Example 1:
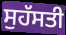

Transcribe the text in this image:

ਸੁਹੱਸਤੀ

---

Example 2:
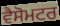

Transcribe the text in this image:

ਵੈਸੋਮਟਰ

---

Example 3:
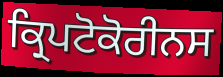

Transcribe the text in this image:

ਕ੍ਰਿਪਟੋਕੋਰੀਨਸ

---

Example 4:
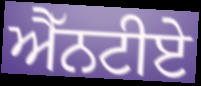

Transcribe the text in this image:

ਐੱਨਟੀਏ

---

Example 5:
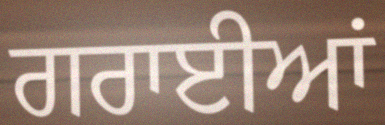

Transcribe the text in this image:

ਗਰਾਈਆਂ